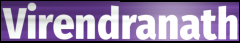
Virendranath